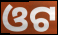
ଓଟ